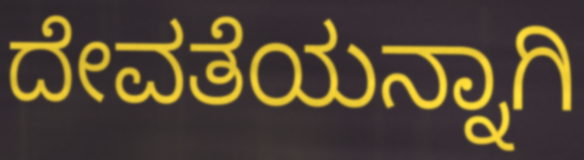
ದೇವತೆಯನ್ನಾಗಿ